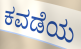
ಕವಡೆಯ